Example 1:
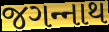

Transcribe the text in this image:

જગન્‍નાથ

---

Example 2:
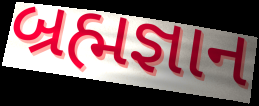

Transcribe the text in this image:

બ્રહ્મજ્ઞાન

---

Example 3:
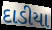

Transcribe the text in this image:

દાડીયા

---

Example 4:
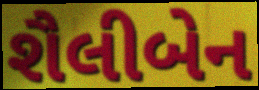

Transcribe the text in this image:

શૈલીબેન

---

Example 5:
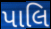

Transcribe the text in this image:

પાલિ